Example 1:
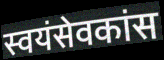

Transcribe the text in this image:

स्वयंसेवकांस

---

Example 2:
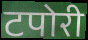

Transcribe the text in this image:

टपोरी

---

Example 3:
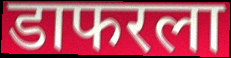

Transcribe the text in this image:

डाफरला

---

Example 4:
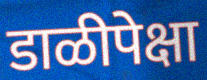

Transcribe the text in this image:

डाळीपेक्षा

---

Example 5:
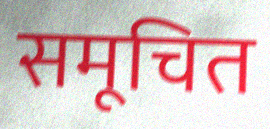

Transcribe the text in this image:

समूचित